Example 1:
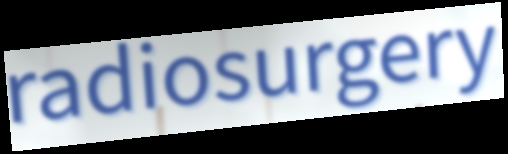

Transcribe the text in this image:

radiosurgery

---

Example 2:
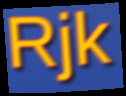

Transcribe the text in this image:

Rjk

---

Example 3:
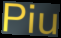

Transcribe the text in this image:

Piu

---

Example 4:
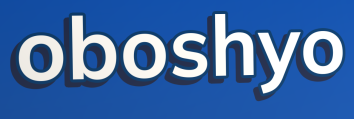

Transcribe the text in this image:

oboshyo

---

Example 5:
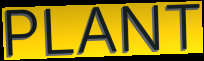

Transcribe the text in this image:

PLANT